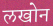
लखोन